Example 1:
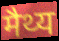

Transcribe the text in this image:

मैथ्य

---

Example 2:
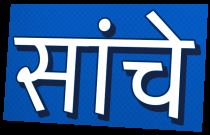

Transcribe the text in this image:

सांचे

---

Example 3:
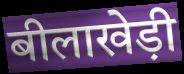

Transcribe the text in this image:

बीलाखेड़ी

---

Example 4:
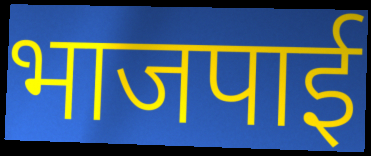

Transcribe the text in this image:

भाजपाई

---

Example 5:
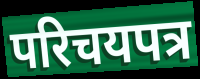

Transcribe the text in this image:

परिचयपत्र